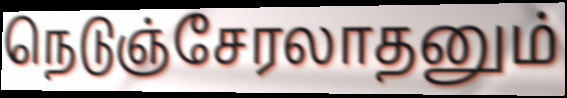
நெடுஞ்சேரலாதனும்